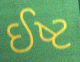
ઈષ્ટ